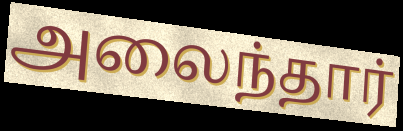
அலைந்தார்